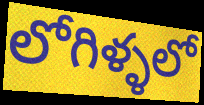
లోగిళ్ళలో